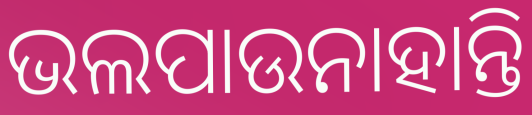
ଭଲପାଉନାହାନ୍ତି